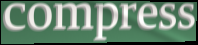
compress